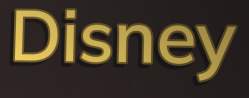
Disney